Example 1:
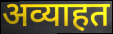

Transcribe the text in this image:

अव्याहत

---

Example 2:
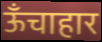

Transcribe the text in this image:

ऊँचाहार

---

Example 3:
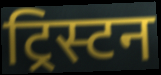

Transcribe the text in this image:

ट्रिस्टन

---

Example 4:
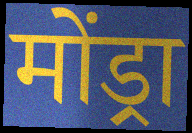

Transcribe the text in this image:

मोंड्रा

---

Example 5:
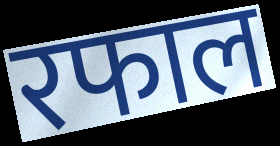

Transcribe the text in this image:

रफाल